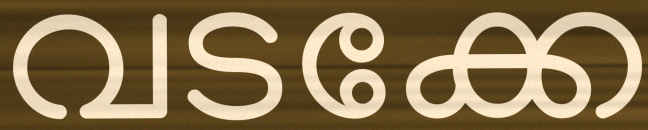
വടക്കേ